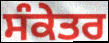
ਸੰਕੇਤਰ